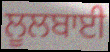
ਲੂਲਬਾਈ